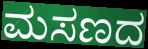
ಮಸಣದ